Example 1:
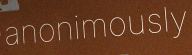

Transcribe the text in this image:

anonimously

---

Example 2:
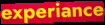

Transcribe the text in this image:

experiance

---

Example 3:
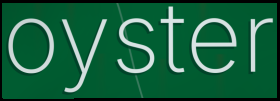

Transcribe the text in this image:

oyster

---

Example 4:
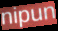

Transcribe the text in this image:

nipun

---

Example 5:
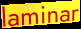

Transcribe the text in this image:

laminar